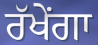
ਰੱਖੇਂਗਾ